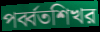
পর্ব্বতশিখর